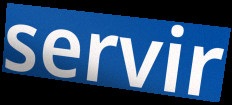
servir